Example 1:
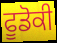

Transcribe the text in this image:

ਫੂਡੋਕੀ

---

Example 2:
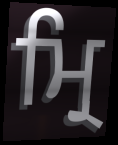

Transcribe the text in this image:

ਮ੍ਰਿ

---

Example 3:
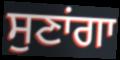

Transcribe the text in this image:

ਸੁਣਾਂਗਾ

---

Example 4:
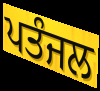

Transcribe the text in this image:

ਪਤੰਜਲ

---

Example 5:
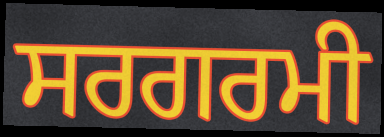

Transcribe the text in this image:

ਸਰਗਰਮੀ